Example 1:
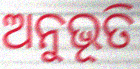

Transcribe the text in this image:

ଅନୁଭୂତି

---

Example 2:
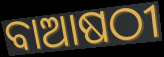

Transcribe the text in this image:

ବାଆଷଠୀ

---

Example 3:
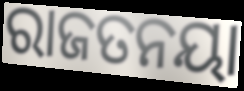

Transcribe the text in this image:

ରାଜତନୟା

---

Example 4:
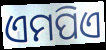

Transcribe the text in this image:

ଏମପିଏ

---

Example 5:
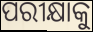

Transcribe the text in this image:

ପରୀକ୍ଷାକୁ